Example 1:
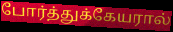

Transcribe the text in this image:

போர்த்துக்கேயரால்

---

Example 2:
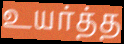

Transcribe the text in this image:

உயர்த்த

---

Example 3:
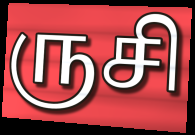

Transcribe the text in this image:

ருசி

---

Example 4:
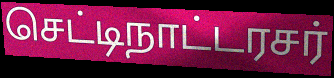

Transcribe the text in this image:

செட்டிநாட்டரசர்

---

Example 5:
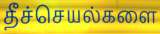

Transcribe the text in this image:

தீச்செயல்களை